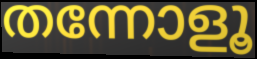
തന്നോളൂ